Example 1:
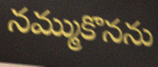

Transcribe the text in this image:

నమ్ముకొనను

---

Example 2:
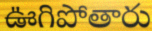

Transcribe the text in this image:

ఊగిపోతారు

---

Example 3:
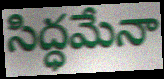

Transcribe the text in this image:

సిద్ధమేనా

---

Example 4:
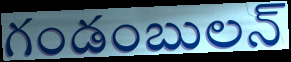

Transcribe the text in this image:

గండంబులన్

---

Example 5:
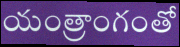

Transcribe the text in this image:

యంత్రాంగంతో